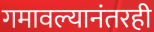
गमावल्यानंतरही